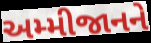
અમ્મીજાનને